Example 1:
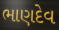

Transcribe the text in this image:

ભાણદેવ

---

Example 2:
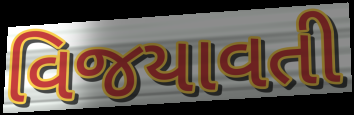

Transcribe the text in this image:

વિજયાવતી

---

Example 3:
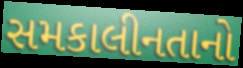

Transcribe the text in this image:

સમકાલીનતાનો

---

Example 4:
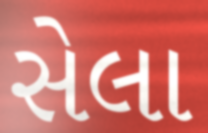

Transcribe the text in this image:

સેલા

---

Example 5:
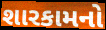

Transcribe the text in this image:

શારકામનો